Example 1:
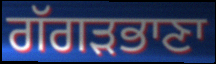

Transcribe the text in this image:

ਗੱਗੜਭਾਣਾ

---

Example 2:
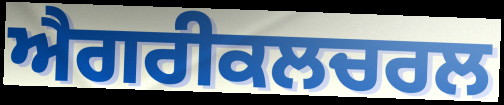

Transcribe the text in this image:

ਐਗਰੀਕਲਚਰਲ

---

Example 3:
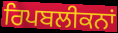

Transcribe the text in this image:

ਰਿਪਬਲੀਕਨਾਂ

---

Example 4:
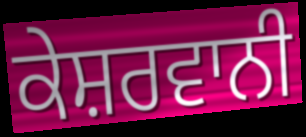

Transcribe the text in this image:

ਕੇਸ਼ਰਵਾਨੀ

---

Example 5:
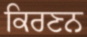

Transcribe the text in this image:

ਕਿਰਣਨ